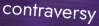
contraversy